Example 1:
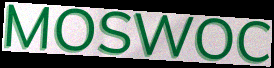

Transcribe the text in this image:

MOSWOC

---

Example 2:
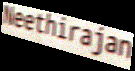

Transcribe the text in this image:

Neethirajan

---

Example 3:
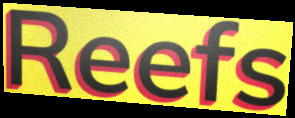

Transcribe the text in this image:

Reefs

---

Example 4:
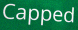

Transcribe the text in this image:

Capped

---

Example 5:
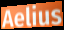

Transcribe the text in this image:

Aelius